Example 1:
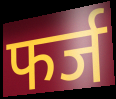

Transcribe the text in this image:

फर्ज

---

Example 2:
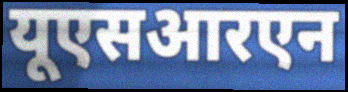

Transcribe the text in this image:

यूएसआरएन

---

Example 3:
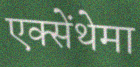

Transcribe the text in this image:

एक्सेंथेमा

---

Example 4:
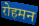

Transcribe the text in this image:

रोहमन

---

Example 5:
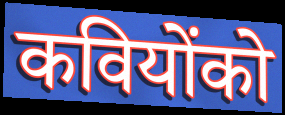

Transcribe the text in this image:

कवियोंको